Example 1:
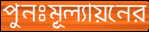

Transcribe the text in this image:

পুনঃমূল্যায়নের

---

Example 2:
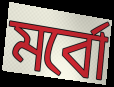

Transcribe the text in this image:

মর্বো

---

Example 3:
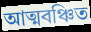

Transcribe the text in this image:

আত্মবঞ্চিত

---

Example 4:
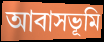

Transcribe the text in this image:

আবাসভূমি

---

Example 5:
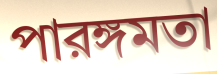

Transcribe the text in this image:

পারঙ্গমতা